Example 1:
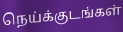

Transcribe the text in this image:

நெய்க்குடங்கள்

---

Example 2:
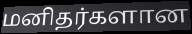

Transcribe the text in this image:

மனிதர்களான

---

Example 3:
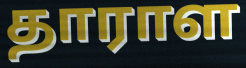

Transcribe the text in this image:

தாராள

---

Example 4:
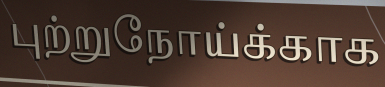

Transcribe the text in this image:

புற்றுநோய்க்காக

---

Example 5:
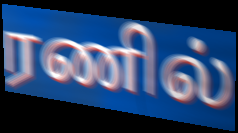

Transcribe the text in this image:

ரணில்